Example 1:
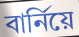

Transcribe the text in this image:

বার্নিয়ে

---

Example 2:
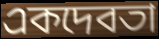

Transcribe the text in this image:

একদেবতা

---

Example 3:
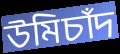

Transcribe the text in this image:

উমিচাঁদ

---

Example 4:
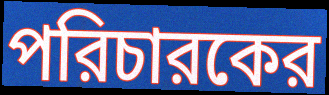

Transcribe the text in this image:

পরিচারকের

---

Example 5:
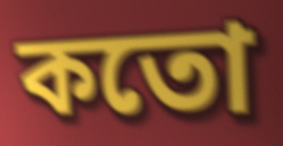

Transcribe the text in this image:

কতো